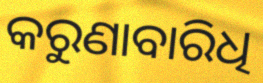
କରୁଣାବାରିଧି